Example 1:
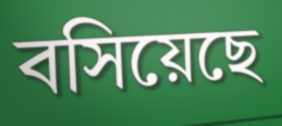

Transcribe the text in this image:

বসিয়েছে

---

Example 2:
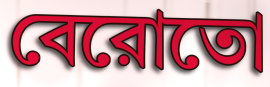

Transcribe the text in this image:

বেরোতো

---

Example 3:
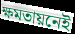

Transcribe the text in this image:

ক্ষমতায়নেই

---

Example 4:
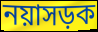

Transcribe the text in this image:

নয়াসড়ক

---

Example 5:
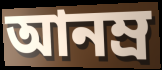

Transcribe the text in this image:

আনম্র